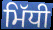
ਮਿੱਧੀ